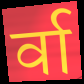
र्वा